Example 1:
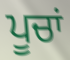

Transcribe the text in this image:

ਪੂਚਾਂ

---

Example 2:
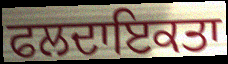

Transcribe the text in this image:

ਫਲਦਾਇਕਤਾ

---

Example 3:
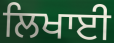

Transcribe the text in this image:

ਲਿਖਾਈ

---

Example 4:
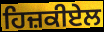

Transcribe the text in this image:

ਹਿਜ਼ਕੀਏਲ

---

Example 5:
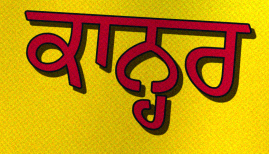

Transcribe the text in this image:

ਕਾਨ੍ਹਰ